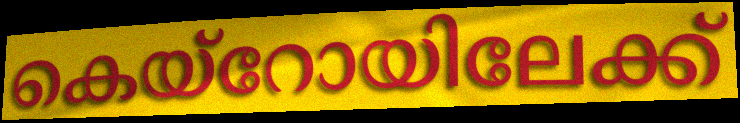
കെയ്റോയിലേക്ക്